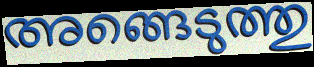
അങ്ങെടുത്തു